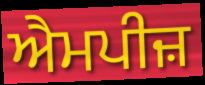
ਐਮਪੀਜ਼